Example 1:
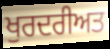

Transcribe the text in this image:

ਖੁਰਦਰੀਅਤ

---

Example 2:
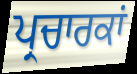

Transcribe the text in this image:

ਪ੍ਰਚਾਰਕਾਂ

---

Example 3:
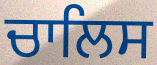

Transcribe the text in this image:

ਚਾਲਿਸ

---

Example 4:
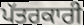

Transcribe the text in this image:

ਪੱਤਰਕਾਰੀ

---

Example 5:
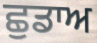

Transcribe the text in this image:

ਛੁਡਾਅ